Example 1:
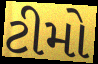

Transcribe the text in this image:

ટીમો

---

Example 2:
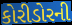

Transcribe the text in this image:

કોરીડોરની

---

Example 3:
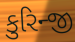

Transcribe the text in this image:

કુરિન્જી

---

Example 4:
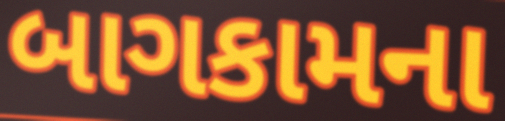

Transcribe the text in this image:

બાગકામના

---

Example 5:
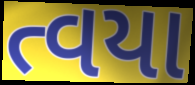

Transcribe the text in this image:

ત્વયા